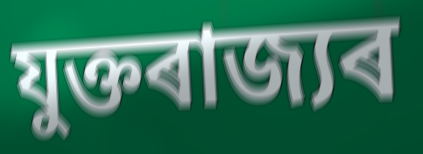
যুক্তৰাজ্যৰ